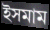
ইসমাম